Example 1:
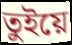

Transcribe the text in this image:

তুইয়ে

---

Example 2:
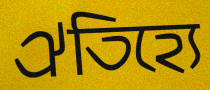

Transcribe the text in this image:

ঐতিহ্যে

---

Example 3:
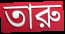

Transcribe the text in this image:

তারু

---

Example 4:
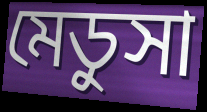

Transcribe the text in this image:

মেডুসা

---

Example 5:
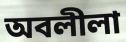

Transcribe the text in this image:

অবলীলা